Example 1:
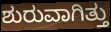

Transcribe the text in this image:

ಶುರುವಾಗಿತ್ತು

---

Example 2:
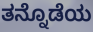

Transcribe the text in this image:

ತನ್ನೊಡೆಯ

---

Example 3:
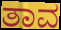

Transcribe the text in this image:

ತಾವ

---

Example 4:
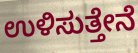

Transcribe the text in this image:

ಉಳಿಸುತ್ತೇನೆ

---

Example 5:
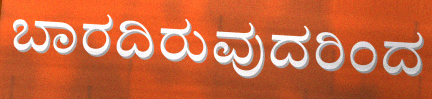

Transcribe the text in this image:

ಬಾರದಿರುವುದರಿಂದ